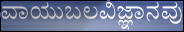
ವಾಯುಬಲವಿಜ್ಞಾನವು